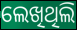
ଲେଖିଥିଲି